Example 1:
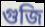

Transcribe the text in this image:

গুজি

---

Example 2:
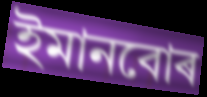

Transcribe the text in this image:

ইমানবোৰ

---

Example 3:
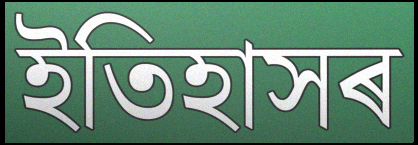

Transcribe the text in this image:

ইতিহাসৰ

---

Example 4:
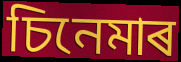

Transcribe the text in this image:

চিনেমাৰ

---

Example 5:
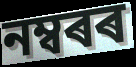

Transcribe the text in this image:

নম্বৰৰ